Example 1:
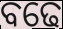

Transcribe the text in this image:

ବଢେ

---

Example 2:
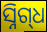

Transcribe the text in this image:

ସ୍ନିଗ୍‍ଧ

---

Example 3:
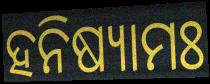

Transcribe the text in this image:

ହନିଷ୍ୟାମଃ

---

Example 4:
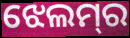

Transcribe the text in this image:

ଝେଲମ୍‌ର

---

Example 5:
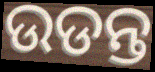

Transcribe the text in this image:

ଉଡନ୍ତ